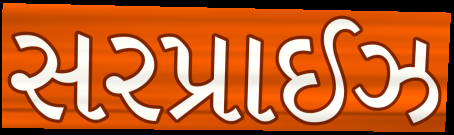
સરપ્રાઈઝ